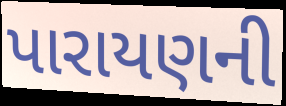
પારાયણની